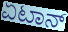
ಏಟಾನ್